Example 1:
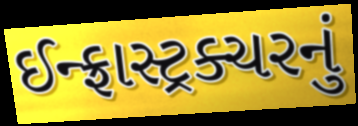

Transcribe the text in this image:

ઈન્ફ્રાસ્ટ્રક્ચરનું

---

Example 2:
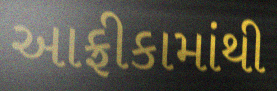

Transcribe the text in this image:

આફ્રીકામાંથી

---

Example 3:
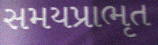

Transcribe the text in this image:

સમયપ્રાભૃત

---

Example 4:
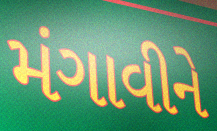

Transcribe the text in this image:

મંગાવીને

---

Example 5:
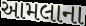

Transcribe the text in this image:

આમલાના